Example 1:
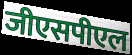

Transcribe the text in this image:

जीएसपीएल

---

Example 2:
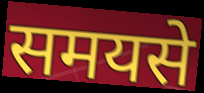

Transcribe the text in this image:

समयसे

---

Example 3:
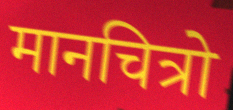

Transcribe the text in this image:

मानचित्रो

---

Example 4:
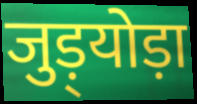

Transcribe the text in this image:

जुड़्योड़ा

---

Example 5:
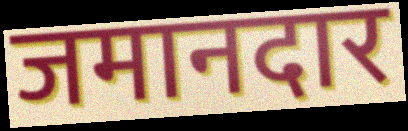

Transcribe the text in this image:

जमानदार